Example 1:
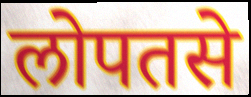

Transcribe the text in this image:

लोपतसे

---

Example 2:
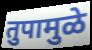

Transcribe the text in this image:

तुपामुळे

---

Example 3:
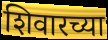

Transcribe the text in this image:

शिवारच्या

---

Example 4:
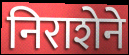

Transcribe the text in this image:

निराशेने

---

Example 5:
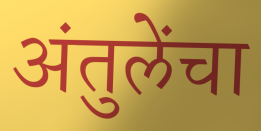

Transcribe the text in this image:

अंतुलेंचा